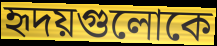
হৃদয়গুলোকে